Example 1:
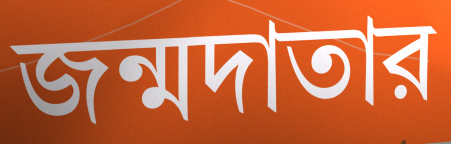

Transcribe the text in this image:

জন্মদাতার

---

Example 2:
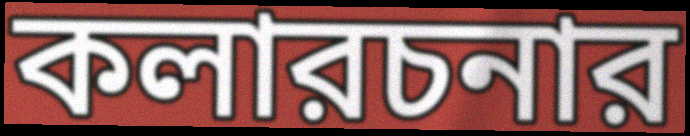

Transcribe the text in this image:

কলারচনার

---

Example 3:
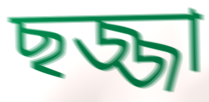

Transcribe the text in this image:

ছজ্জা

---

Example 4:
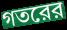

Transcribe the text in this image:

গতরের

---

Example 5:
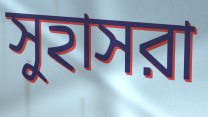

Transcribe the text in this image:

সুহাসরা